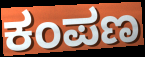
ಕಂಪಣ